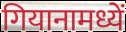
गियानामध्यें